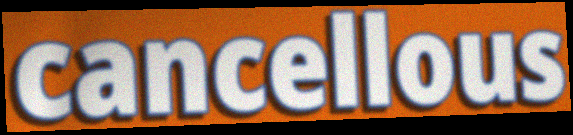
cancellous